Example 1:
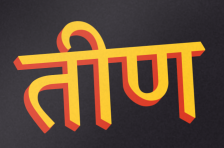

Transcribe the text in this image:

तीण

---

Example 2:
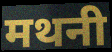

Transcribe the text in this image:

मथनी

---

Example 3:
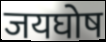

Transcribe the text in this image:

जयघोष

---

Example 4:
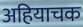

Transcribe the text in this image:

अहियाचक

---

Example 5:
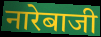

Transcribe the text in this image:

नारेबाजी